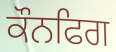
ਕੌਨਫਿਗ